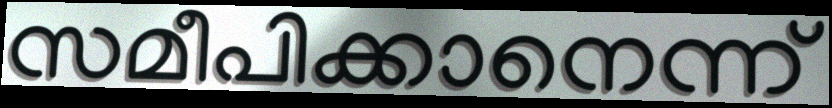
സമീപിക്കാനെന്ന്